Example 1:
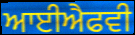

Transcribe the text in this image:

ਆਈਐਫਵੀ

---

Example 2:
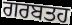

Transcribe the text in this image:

ਗਰਬਤਹ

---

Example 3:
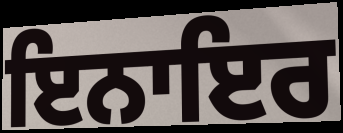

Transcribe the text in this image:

ਇਨਾਇਰ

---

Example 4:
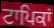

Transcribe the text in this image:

ਟਾਪਿਕਾਂ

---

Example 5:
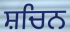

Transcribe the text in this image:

ਸ਼ਚਿਨ